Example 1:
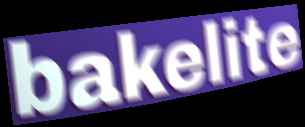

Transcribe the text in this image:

bakelite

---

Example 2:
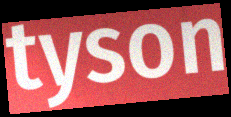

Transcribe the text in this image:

tyson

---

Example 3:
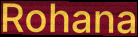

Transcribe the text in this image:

Rohana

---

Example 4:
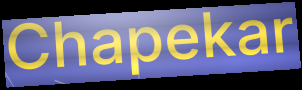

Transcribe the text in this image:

Chapekar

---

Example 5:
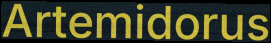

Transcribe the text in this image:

Artemidorus